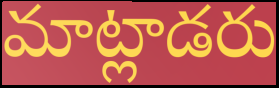
మాట్లాడరు